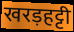
खरड़हट्टी